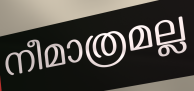
നീമാത്രമല്ല